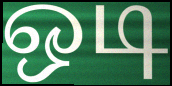
ஒடி